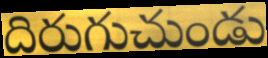
దిరుగుచుండు